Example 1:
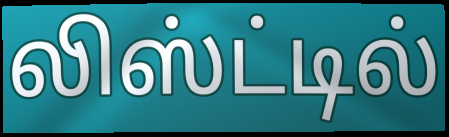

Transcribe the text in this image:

லிஸ்ட்டில்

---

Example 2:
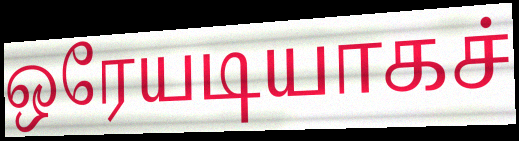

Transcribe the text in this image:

ஒரேயடியாகச்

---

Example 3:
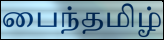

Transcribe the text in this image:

பைந்தமிழ்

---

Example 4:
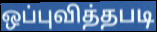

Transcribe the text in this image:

ஒப்புவித்தபடி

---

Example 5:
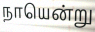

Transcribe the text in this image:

நாயென்று